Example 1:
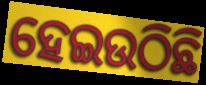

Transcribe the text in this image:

ହେଇଉଠିଛି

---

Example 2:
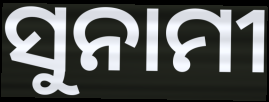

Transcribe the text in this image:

ସୁନାମୀ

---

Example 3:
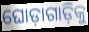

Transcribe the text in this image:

ଘୋଡ଼ାଗାଡ଼ିକୁ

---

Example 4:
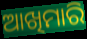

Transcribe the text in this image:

ଆଖିମାରି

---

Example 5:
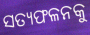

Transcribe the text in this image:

ସତ୍ୟଫଳନକୁ